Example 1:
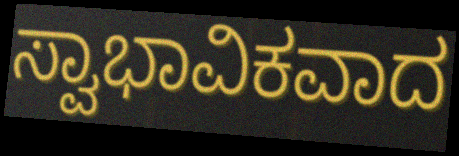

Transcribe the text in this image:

ಸ್ವಾಭಾವಿಕವಾದ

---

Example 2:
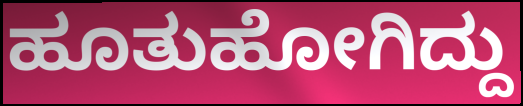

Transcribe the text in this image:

ಹೂತುಹೋಗಿದ್ದು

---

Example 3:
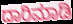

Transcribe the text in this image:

ದಾರಿಮಾಡಿ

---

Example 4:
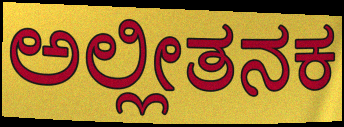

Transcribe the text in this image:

ಅಲ್ಲೀತನಕ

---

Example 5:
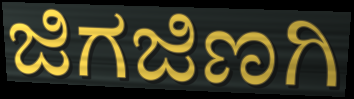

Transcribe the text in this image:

ಜಿಗಜಿಣಗಿ